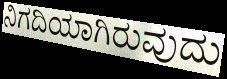
ನಿಗದಿಯಾಗಿರುವುದು